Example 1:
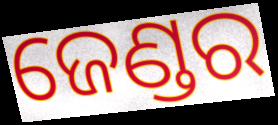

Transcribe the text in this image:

ଜେଣ୍ଡର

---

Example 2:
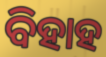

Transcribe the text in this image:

ବିହାହ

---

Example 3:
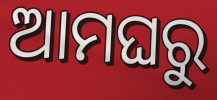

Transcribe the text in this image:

ଆମଘରୁ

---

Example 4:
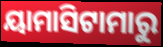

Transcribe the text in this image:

ୟାମାସିଟାମାରୁ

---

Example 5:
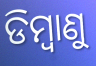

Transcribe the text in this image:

ଡିମ୍ୱାଣୁ